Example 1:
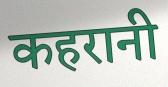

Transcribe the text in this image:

कहरानी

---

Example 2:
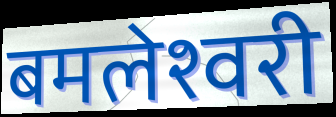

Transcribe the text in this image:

बमलेश्वरी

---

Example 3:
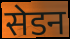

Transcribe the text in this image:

सेडन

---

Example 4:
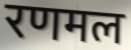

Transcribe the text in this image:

रणमल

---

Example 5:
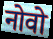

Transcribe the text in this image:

नोवो